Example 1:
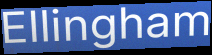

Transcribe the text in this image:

Ellingham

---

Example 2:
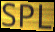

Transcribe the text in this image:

SPL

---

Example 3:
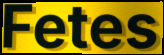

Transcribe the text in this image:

Fetes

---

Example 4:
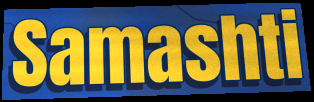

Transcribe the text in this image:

Samashti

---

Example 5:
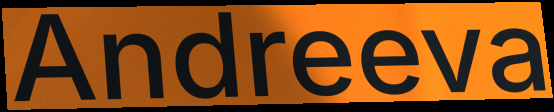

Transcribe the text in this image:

Andreeva